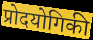
प्रोदयोगिकी